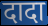
दादा